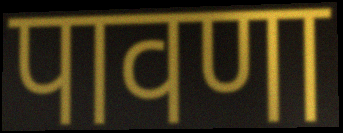
पावणा